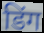
डिंग